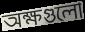
অক্ষগুলো